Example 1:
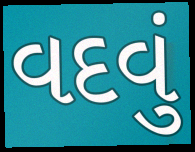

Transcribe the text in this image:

વદવું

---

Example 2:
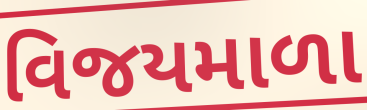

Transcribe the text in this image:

વિજયમાળા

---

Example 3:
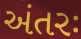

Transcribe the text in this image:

અંતરઃ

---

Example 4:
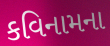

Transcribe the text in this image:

કવિનામના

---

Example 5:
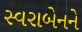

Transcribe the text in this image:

સ્વરાબેનને